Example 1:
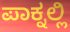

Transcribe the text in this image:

ಪಾಕ್ನಲ್ಲಿ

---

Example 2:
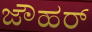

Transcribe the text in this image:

ಜೌಹರ್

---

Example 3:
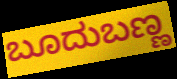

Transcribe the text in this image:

ಬೂದುಬಣ್ಣ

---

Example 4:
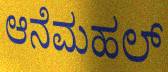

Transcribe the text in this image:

ಆನೆಮಹಲ್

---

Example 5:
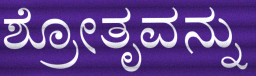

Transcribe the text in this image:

ಶ್ರೋತೃವನ್ನು